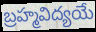
బ్రహ్మవిద్యయే